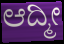
ಆದ್ಮೀ